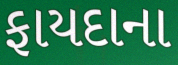
ફાયદાના